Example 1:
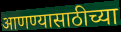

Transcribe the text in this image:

आणण्यासाठीच्या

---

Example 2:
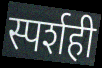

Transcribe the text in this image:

स्पर्शही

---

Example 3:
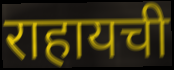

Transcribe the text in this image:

राहायची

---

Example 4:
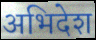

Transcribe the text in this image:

अभिदेश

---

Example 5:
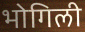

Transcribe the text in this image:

भोगिली